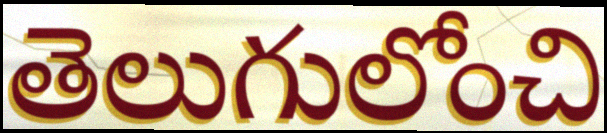
తెలుగులోంచి